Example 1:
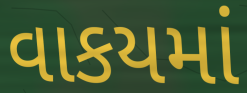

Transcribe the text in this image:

વાકયમાં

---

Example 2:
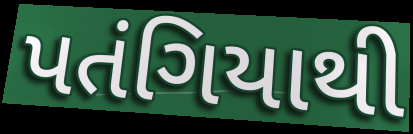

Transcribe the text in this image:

પતંગિયાથી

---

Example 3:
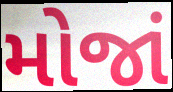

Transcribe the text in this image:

મોજાં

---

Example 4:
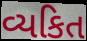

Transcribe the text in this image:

વ્યકિત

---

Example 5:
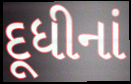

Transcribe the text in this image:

દૂધીનાં